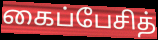
கைப்பேசித்